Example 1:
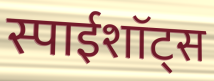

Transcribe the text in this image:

स्पाईशॉट्स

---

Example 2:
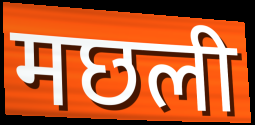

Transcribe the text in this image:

मछली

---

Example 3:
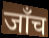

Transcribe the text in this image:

जाँच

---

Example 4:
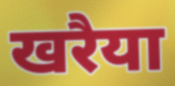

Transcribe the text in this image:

खरैया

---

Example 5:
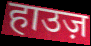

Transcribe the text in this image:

हाउज़